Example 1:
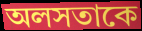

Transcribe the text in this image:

অলসতাকে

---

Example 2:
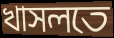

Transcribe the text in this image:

খাসলতে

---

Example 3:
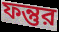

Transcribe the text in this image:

ফন্তুর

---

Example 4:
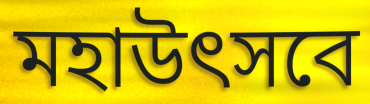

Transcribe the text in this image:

মহাউৎসবে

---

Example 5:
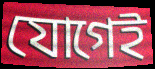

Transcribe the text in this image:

যোগেই